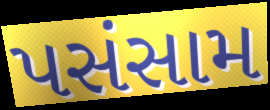
પસંસામ